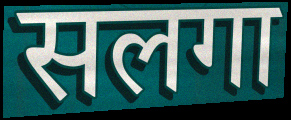
सलगा